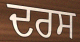
ਦਰਸ